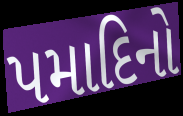
પમાદિનો